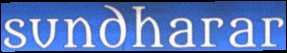
sundharar